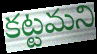
కట్టమని